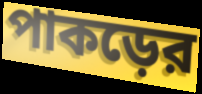
পাকড়ের